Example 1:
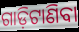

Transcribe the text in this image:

ଗାଡ଼ିଟାଣିବା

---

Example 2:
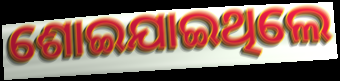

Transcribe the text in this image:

ଶୋଇଯାଇଥିଲେ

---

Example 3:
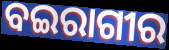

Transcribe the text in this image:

ବଇରାଗୀର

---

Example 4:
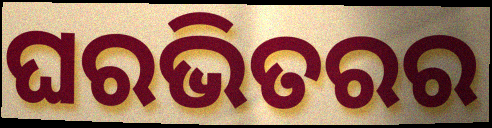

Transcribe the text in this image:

ଘରଭିତରର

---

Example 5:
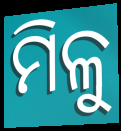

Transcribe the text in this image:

ମିଳୁ